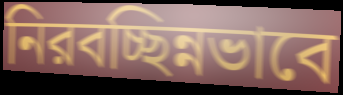
নিরবচ্ছিন্নভাবে